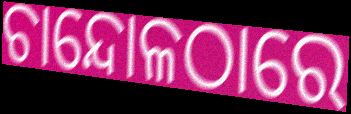
ଚାନ୍ଦୋଳଠାରେ